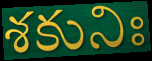
శకునిః